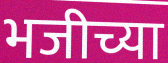
भजीच्या